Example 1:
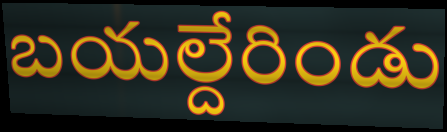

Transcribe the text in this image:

బయల్దేరిండు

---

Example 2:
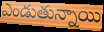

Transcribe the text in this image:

ఎండుతున్నాయి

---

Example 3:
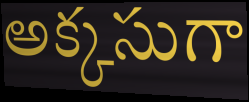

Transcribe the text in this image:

అక్కసుగా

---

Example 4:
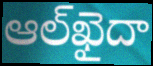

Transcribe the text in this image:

ఆల్‌ఖైదా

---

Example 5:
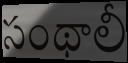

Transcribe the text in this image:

సంథాలీ